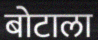
बोटाला